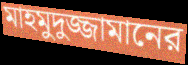
মাহমুদুজ্জামানের